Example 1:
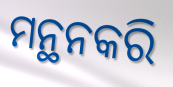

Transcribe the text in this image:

ମନ୍ଥନକରି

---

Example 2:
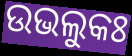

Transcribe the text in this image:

ଉଭଲୁକଃ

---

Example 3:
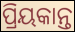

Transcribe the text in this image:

ପ୍ରିୟକାନ୍ତ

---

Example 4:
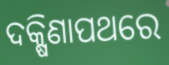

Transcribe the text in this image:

ଦକ୍ଷିଣାପଥରେ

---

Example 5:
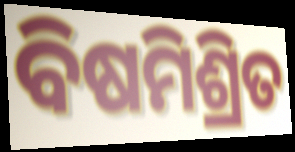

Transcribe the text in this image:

ବିଷମିଶ୍ରିତ